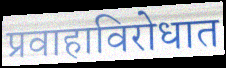
प्रवाहाविरोधात